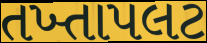
તખ્તાપલટ